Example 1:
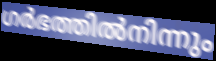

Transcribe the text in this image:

ഗർഭത്തിൽനിന്നും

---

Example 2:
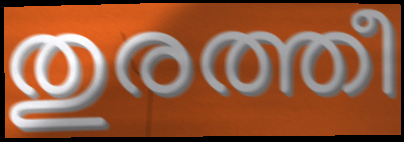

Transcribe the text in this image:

തുരത്തീ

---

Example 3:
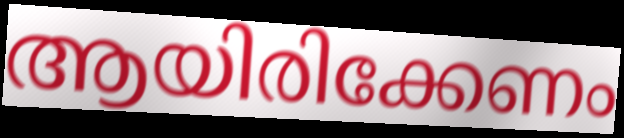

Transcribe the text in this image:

ആയിരിക്കേണം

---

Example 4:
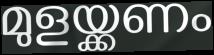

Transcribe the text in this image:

മുളയ്ക്കണം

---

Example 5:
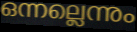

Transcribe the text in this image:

ഒന്നല്ലെന്നും